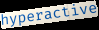
hyperactive